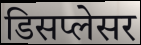
डिसप्लेसर